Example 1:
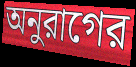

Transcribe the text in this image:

অনুরাগের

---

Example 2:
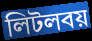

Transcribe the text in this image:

লিটলবয়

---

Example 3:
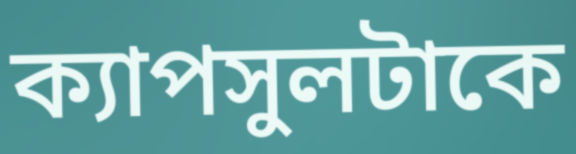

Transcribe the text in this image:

ক্যাপসুলটাকে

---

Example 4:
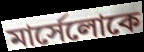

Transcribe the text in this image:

মার্সেলোকে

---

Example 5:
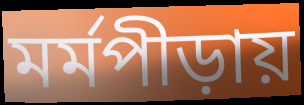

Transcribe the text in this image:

মর্মপীড়ায়